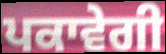
ਪਕਾਵੇਗੀ